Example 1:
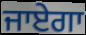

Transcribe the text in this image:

ਜਾਏਗਾ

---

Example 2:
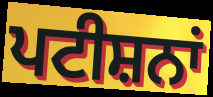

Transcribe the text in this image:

ਪਟੀਸ਼ਨਾਂ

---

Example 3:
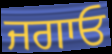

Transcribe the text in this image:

ਜਗਾਓ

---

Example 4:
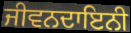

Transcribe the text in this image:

ਜੀਵਨਦਾਇਨੀ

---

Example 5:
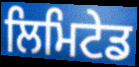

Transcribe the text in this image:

ਲਿਮਿਟੇਡ